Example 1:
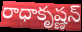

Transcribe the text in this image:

రాధాకృష్ణన్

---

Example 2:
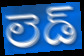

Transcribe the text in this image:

లెడ్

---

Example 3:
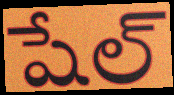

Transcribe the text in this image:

షేల్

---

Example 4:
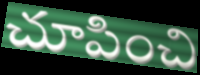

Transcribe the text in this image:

చూపించి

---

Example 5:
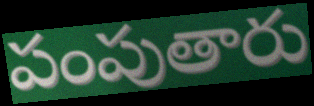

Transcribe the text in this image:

పంపుతారు